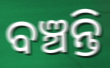
ବଞ୍ଚନ୍ତି